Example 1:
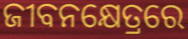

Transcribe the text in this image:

ଜୀବନକ୍ଷେତ୍ରରେ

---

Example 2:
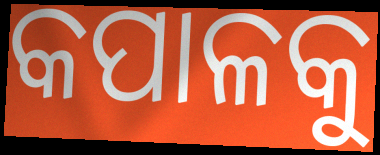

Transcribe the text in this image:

କପାଳକୁ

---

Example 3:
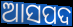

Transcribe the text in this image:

ଆସପଦ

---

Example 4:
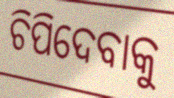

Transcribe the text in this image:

ଚିପିଦେବାକୁ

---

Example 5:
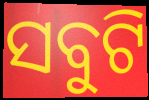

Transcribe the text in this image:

ସବୁଟି